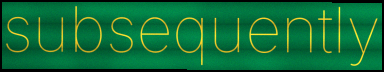
subsequently